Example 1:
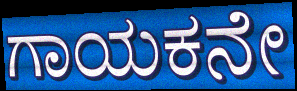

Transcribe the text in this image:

ಗಾಯಕನೇ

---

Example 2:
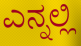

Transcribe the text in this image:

ಎನ್ನಲ್ಲಿ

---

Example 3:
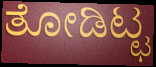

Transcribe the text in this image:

ತೋಡಿಟ್ಟ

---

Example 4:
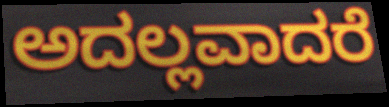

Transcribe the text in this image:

ಅದಲ್ಲವಾದರೆ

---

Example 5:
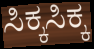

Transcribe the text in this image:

ಸಿಕ್ಕಸಿಕ್ಕ